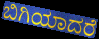
ಬಿಗಿಯಾದರೆ